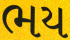
ભય